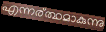
എന്നര്ത്ഥമാകുന്നു